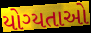
યોગ્યતાઓ